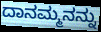
ದಾನಮ್ಮನನ್ನು